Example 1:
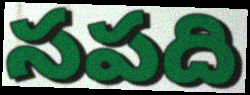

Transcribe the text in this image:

సపది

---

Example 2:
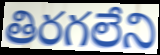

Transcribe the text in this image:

తిరగలేని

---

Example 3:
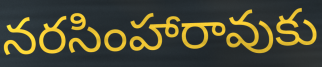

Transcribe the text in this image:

నరసింహారావుకు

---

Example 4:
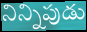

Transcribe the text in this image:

నిన్నిపుడు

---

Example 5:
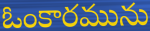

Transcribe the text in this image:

ఓంకారమును